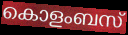
കൊളംബസ്